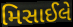
મિસાઈલે